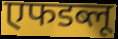
एफडब्लू